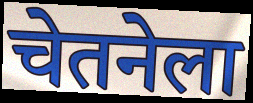
चेतनेला